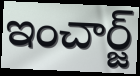
ఇంచార్జ్